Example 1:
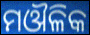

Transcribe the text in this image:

ମଔଳିକ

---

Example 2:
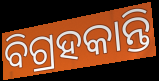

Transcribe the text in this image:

ବିଗ୍ରହକାନ୍ତି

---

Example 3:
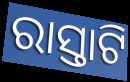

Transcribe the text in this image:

ରାସ୍ତାଟି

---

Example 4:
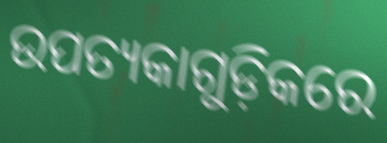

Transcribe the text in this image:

ଉପତ୍ୟକାଗୁଡ଼ିକରେ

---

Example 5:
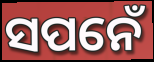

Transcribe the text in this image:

ସପନେଁ